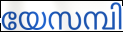
യേസമ്പി